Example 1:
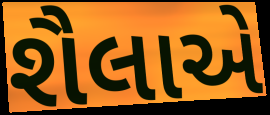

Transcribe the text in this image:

શૈલાએ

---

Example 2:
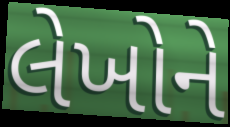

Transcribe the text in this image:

લેખોને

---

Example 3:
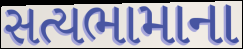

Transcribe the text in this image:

સત્યભામાના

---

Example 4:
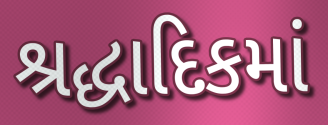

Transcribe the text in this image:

શ્રદ્ધાદિકમાં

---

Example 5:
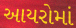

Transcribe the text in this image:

આયરોમાં